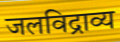
जलविद्राव्य